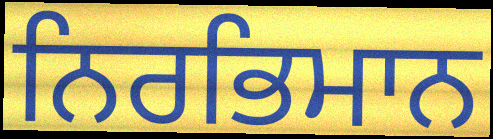
ਨਿਰਭਿਮਾਨ